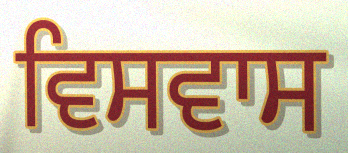
ਵਿਸਵਾਸ